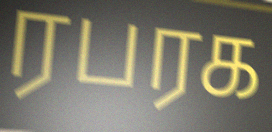
ரபரக